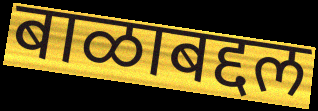
बाळाबद्दल